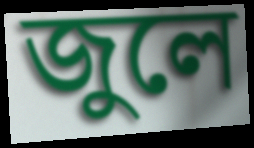
জুলে